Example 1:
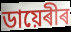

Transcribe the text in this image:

ডায়েৰীৰ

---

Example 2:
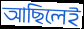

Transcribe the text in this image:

আছিলেই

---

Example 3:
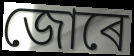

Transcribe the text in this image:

জোৰে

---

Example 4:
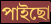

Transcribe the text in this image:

পাইছো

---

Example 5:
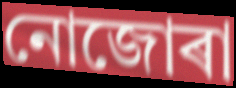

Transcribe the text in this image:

নোজোৰা